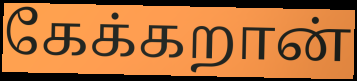
கேக்கறான்